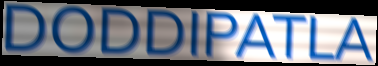
DODDIPATLA